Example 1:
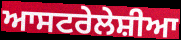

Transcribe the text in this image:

ਆਸਟਰੇਲੇਸ਼ੀਆ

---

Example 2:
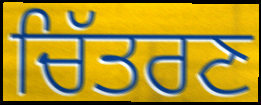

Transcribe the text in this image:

ਚਿੱਤਰਣ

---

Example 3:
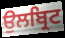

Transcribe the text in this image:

ਉਲਬ੍ਰਿਟ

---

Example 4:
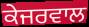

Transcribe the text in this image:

ਕੇਜਰਵਾਲ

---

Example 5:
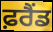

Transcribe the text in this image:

ਫ਼ਰੈਂਡ